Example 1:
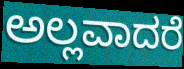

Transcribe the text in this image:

ಅಲ್ಲವಾದರೆ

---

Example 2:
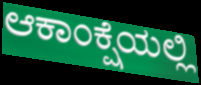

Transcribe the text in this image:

ಆಕಾಂಕ್ಷೆಯಲ್ಲಿ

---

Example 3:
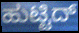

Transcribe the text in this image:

ಹುಟ್ಟಿದ್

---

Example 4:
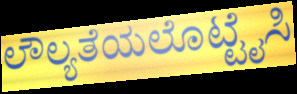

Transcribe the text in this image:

ಲೌಲ್ಯತೆಯಲೊಟ್ಟೈಸಿ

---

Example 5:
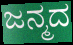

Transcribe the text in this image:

ಜನ್ಮದ